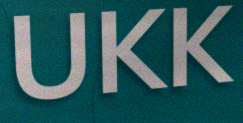
UKK